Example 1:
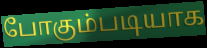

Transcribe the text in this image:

போகும்படியாக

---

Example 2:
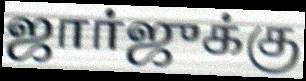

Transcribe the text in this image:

ஜார்ஜுக்கு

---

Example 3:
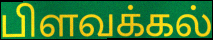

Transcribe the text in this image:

பிளவக்கல்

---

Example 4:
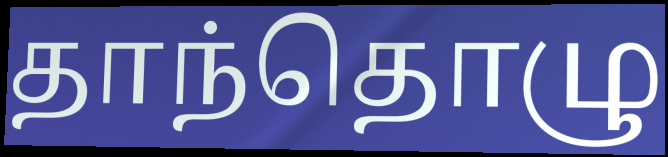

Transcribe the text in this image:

தாந்தொழு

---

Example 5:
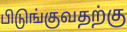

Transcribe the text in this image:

பிடுங்குவதற்கு